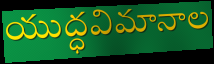
యుద్ధవిమానాల